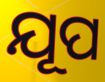
ଯୂପ